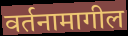
वर्तनामागील